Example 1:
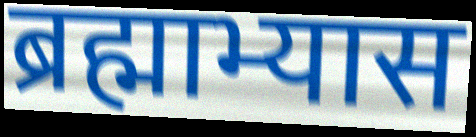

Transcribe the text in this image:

ब्रह्माभ्यास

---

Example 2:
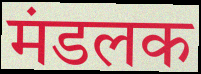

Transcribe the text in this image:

मंडलक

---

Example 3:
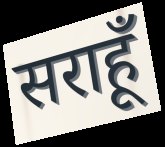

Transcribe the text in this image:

सराहूँ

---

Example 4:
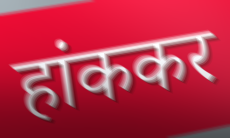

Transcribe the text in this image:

हांककर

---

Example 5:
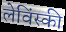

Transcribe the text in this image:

लेविंस्की